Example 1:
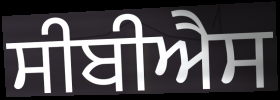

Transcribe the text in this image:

ਸੀਬੀਐਸ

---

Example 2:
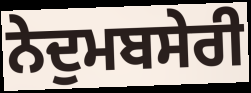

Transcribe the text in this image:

ਨੇਦੁਮਬਸੇਰੀ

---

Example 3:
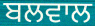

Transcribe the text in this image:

ਬਲਵਾਲ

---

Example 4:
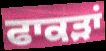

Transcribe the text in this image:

ਫਾਕੜਾਂ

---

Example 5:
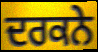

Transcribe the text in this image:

ਦਰਕਨੇ